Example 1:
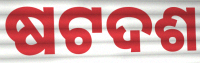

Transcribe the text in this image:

ଷଟଦଶ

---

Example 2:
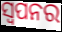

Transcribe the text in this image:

ସ୍ଵପନର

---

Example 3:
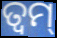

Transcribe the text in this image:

ତ୍ୱମ୍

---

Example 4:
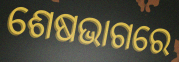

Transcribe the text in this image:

ଶେଷଭାଗରେ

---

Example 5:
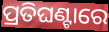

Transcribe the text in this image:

ପ୍ରତିଘଣ୍ଟାରେ